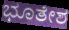
ಭೂತೇಶ